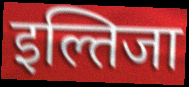
इल्तिजा